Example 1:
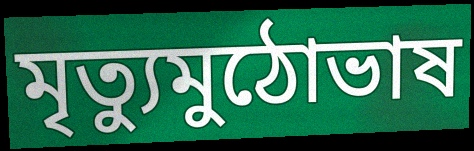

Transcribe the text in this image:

মৃত্যুমুঠোভাষ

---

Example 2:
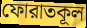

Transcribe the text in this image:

ফোরাতকূল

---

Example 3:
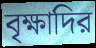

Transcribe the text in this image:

বৃক্ষাদির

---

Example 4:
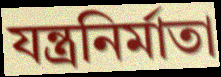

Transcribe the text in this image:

যন্ত্রনির্মাতা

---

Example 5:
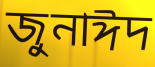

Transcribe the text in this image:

জুনাঈদ